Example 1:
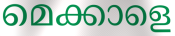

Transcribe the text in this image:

മെക്കാളെ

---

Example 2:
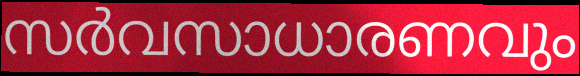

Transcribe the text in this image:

സർവസാധാരണവും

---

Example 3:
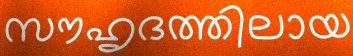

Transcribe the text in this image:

സൗഹൃദത്തിലായ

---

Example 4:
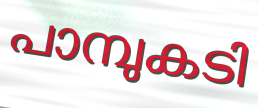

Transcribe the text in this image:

പാമ്പുകടി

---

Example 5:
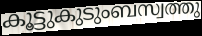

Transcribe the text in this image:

കൂട്ടുകുടുംബസ്വത്തു